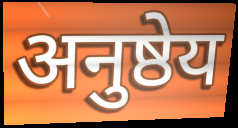
अनुष्ठेय